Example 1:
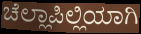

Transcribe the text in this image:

ಚೆಲ್ಲಾಪಿಲ್ಲಿಯಾಗಿ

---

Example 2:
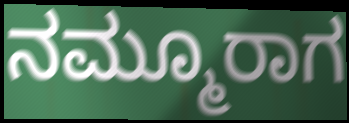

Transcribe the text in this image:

ನಮ್ಮೂರಾಗ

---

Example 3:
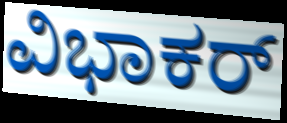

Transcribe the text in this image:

ವಿಭಾಕರ್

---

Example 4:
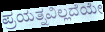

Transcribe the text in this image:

ಪ್ರಯತ್ನವಿಲ್ಲದೆಯೇ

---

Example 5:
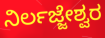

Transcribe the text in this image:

ನಿರ್ಲಜ್ಜೇಶ್ವರ